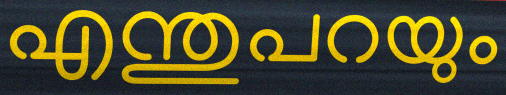
എന്തുപറയും